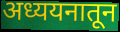
अध्ययनातून